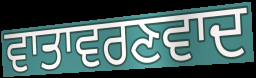
ਵਾਤਾਵਰਣਵਾਦ